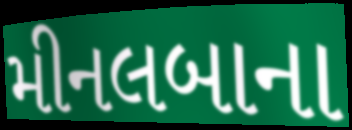
મીનલબાના